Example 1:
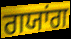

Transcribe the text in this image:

ਗਯਾਂਗ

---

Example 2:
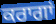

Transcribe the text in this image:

ਕਰਾਗਾਂ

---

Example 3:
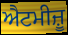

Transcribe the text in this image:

ਐਟਮੀਜ਼ੂ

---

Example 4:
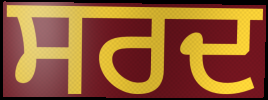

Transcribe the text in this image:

ਸਰਦ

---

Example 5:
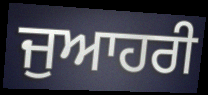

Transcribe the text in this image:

ਜੁਆਹਰੀ